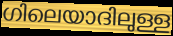
ഗിലെയാദിലുള്ള